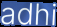
adhi